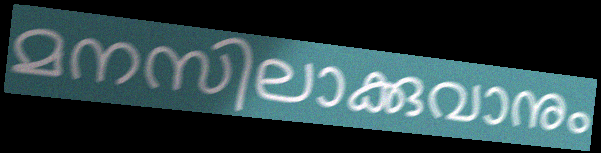
മനസിലാക്കുവാനും